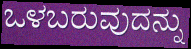
ಒಳಬರುವುದನ್ನು